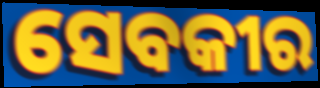
ସେବକୀର